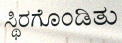
ಸ್ಥಿರಗೊಂಡಿತು